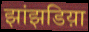
झांझडिय़ा